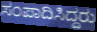
ಸಂಪಾದಿಸಿದ್ದರು